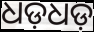
ଧଡ଼ଧଡ଼